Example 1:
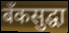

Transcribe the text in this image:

बँकसुद्धा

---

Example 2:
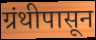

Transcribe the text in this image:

ग्रंथीपासून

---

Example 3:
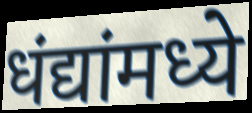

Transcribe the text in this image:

धंद्यांमध्ये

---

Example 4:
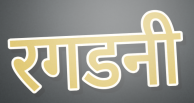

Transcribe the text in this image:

रगडनी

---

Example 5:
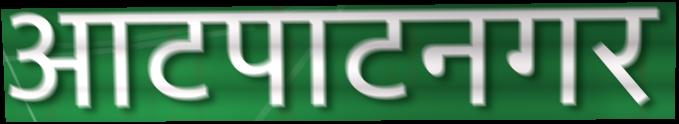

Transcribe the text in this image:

आटपाटनगर